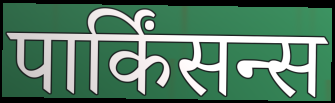
पार्किंसन्स